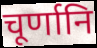
चूर्णानि